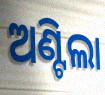
ଅଣ୍ଟିଲା